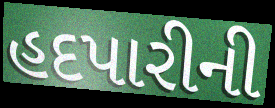
હદપારીની